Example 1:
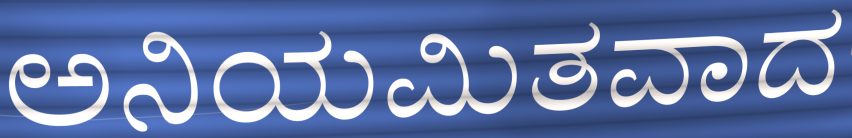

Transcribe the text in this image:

ಅನಿಯಮಿತವಾದ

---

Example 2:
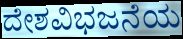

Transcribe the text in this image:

ದೇಶವಿಭಜನೆಯ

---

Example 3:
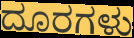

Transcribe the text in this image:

ದೂರಗಳು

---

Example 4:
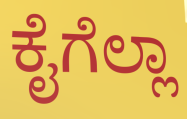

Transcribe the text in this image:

ಕೈಗೆಲ್ಲಾ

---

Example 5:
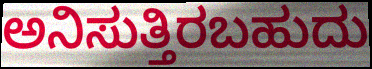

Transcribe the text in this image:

ಅನಿಸುತ್ತಿರಬಹುದು